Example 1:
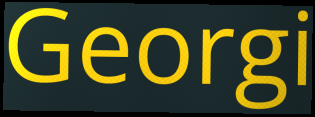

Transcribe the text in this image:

Georgi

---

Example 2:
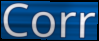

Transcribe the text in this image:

Corr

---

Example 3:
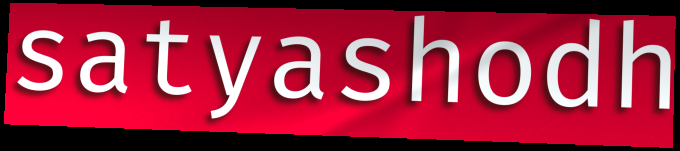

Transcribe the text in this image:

satyashodh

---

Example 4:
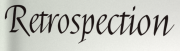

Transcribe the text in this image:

Retrospection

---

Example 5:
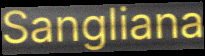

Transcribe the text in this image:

Sangliana